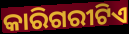
କାରିଗରୀଟିଏ